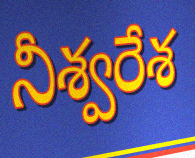
నీశ్వరేశ